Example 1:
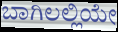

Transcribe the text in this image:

ಬಾಗಿಲಲ್ಲಿಯೇ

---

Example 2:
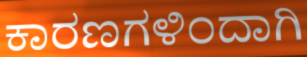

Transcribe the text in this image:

ಕಾರಣಗಳಿಂದಾಗಿ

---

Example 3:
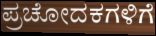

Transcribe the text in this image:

ಪ್ರಚೋದಕಗಳಿಗೆ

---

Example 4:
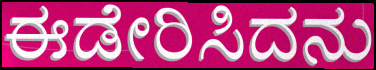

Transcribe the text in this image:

ಈಡೇರಿಸಿದನು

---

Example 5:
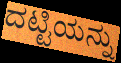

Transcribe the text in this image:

ದಟ್ಟಿಯನ್ನು